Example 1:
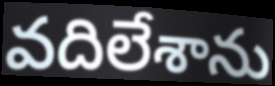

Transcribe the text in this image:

వదిలేశాను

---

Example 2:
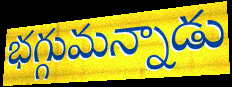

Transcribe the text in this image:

భగ్గుమన్నాడు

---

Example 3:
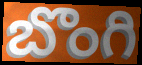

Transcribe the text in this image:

బొంగి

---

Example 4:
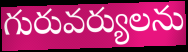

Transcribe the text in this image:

గురువర్యులను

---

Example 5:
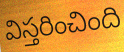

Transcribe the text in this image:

విస్తరించింది